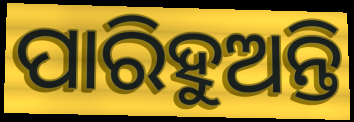
ପାରିହୁଅନ୍ତି